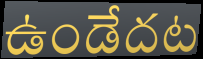
ఉండేదట